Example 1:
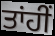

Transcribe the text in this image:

ਤਾਂਹੀਂ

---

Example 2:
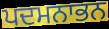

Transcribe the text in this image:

ਪਦਮਨਾਭਨ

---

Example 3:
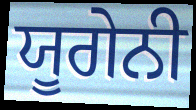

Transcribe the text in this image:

ਯੂਗੇਨੀ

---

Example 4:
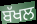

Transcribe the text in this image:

ਬੱਖਲ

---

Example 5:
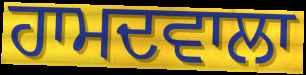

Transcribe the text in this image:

ਹਾਮਦਵਾਲਾ